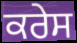
ਕਰੇਸ